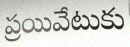
ప్రయివేటుకు